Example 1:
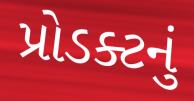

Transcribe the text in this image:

પ્રોડક્ટનું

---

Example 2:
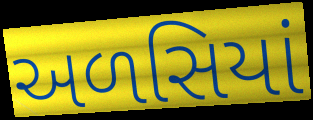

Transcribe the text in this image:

અળસિયાં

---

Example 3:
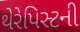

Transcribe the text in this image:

થેરેપિસ્ટની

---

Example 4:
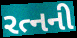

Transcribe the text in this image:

રત્નની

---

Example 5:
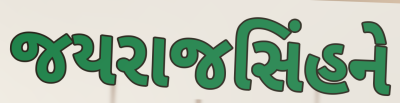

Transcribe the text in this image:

જયરાજસિંહને